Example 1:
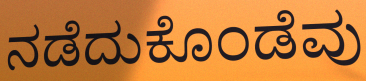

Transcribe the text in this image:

ನಡೆದುಕೊಂಡೆವು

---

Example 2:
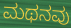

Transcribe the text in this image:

ಮಥನವು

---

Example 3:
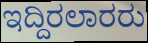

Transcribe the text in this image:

ಇದ್ದಿರಲಾರರು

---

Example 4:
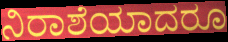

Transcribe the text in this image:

ನಿರಾಶೆಯಾದರೂ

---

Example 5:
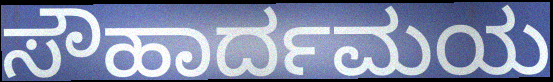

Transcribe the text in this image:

ಸೌಹಾರ್ದಮಯ